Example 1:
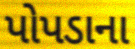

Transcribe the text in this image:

પોપડાના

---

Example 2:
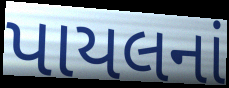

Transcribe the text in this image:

પાયલનાં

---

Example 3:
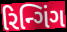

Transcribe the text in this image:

રિન્ગિંગ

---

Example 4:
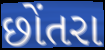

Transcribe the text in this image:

છોંતરા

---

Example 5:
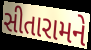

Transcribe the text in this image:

સીતારામને